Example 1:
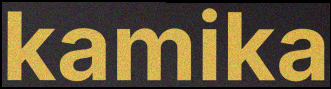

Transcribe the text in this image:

kamika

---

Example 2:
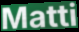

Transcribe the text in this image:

Matti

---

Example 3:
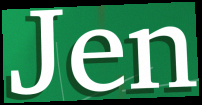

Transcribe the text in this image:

Jen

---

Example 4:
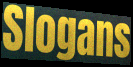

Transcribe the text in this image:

Slogans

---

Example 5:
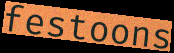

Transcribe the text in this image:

festoons